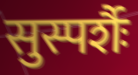
सुस्पर्शैः